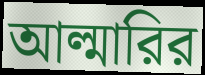
আল্মারির